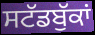
ਸਟੱਡਬੁੱਕਾਂ